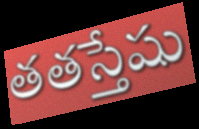
తతస్తేషు